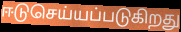
ஈடுசெய்யப்படுகிறது